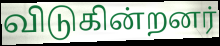
விடுகின்றனர்